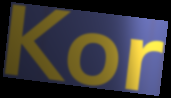
Kor